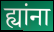
ह्यांना